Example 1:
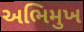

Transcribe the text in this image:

અભિમુખ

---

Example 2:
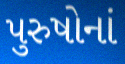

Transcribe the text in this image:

પુરુષોનાં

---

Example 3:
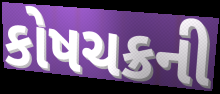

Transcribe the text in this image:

કોષચક્રની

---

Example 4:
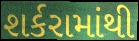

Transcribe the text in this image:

શર્કરામાંથી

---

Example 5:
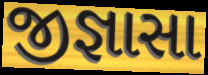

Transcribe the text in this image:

જીજ્ઞાસા